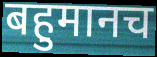
बहुमानच